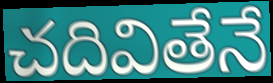
చదివితేనే